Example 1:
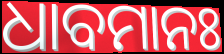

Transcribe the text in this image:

ଧାବମାନଃ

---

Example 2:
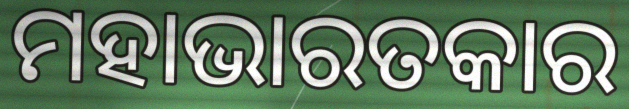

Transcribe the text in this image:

ମହାଭାରତକାର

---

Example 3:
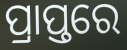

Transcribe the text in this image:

ପ୍ରାପ୍ତରେ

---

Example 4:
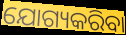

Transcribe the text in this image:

ଯୋଗ୍ୟକରିବା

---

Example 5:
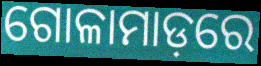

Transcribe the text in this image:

ଗୋଳାମାଡ଼ରେ